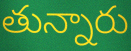
తున్నారు